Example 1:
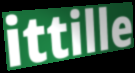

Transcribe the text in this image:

ittille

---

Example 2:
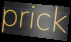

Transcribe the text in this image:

prick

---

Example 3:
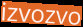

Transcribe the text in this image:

izvozvo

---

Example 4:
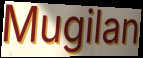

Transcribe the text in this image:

Mugilan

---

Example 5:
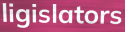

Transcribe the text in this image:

ligislators